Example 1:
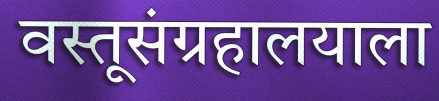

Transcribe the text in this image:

वस्तूसंग्रहालयाला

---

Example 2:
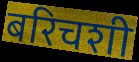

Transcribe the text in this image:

बरिचशी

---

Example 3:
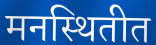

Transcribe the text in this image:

मनस्थितीत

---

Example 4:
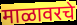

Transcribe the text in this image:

माळावरचे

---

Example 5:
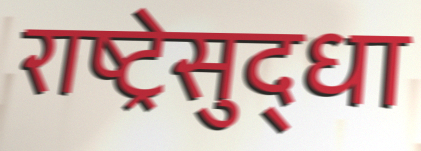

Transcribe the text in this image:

राष्ट्रेसुद्धा